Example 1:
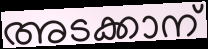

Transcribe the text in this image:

അടക്കാന്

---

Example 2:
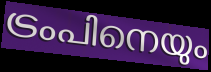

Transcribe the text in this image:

ട്രംപിനെയും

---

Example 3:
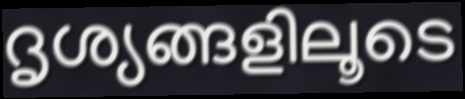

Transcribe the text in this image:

ദൃശ്യങ്ങളിലൂടെ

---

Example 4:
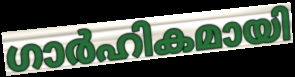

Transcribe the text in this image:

ഗാർഹികമായി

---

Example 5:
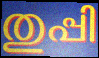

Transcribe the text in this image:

തുപ്പി